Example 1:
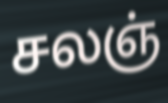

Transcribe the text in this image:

சலஞ்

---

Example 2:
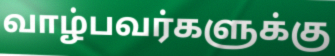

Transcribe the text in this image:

வாழ்பவர்களுக்கு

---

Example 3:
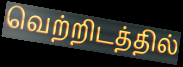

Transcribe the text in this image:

வெற்றிடத்தில்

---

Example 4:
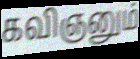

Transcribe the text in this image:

கவிஞனும்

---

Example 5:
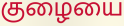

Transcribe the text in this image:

குழையை